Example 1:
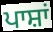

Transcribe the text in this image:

ਪਾਸ਼ਾਂ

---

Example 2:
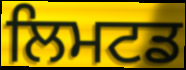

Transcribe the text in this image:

ਲਿਮਟਡ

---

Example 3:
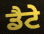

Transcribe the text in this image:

ਡੈਟੇ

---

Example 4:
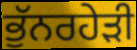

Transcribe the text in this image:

ਭੁੱਨਰਹੇੜੀ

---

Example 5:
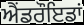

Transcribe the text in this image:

ਐਂਡਰੌਇਡਾਂ